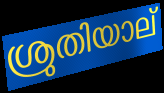
ശ്രുതിയാല്